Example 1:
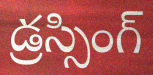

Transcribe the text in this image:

డ్రస్సింగ్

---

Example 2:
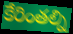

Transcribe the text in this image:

కేరింతల్ని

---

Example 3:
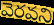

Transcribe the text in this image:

వెరవని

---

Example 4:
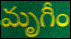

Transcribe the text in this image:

మృగీం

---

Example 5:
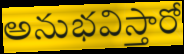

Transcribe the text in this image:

అనుభవిస్తారో